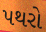
પથરો